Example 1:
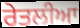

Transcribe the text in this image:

ਰੇਤਲੀਆ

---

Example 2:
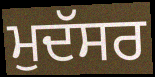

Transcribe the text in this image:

ਮੁਦੱਸਰ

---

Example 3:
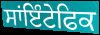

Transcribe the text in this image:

ਸਾਂਇੰਟੇਫਿਕ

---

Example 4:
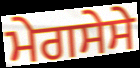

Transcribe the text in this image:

ਮੇਗਸੇਸੇ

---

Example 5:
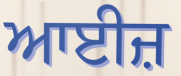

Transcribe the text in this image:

ਆਈਜ਼